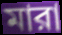
মারা